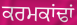
ਕਰਮਕਾਂਢਾਂ